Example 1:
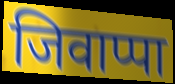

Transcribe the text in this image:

जिवाप्पा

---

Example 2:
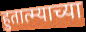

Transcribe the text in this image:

हुतात्म्याच्या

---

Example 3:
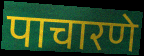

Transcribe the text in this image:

पाचारणे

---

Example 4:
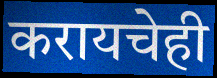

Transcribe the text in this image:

करायचेही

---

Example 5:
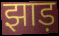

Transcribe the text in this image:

झाड़